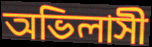
অভিলাসী